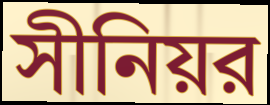
সীনিয়র